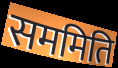
सममिति